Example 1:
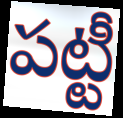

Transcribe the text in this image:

పట్టీ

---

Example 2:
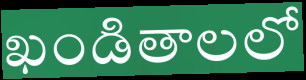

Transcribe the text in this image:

ఖండితాలలో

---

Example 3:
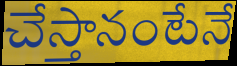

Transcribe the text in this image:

చేస్తానంటేనే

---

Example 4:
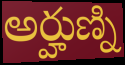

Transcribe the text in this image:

అర్హుణ్ని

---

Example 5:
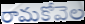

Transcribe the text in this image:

రామకోవెల